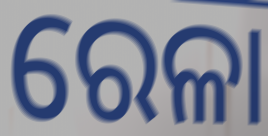
ରେଳା